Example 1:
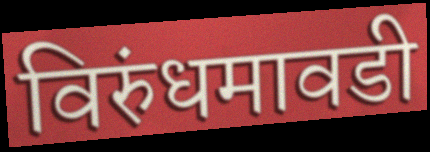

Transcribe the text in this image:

विरुंधमावडी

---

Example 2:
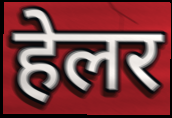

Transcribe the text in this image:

हेलर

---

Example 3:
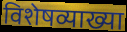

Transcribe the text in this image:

विशेषव्याख्या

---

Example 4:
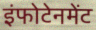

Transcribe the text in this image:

इंफोटेनमेंट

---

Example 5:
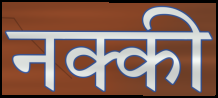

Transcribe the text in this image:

नक्की